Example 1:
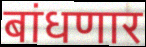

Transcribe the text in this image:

बांधणार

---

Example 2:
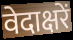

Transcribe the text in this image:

वेदाक्षरें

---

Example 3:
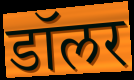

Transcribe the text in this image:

डॉलर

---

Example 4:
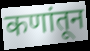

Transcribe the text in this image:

कणांतून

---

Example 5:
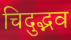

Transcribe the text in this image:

चिदुद्भव